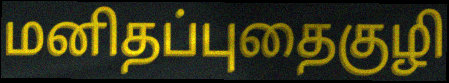
மனிதப்புதைகுழி